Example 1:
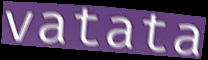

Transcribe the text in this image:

vatata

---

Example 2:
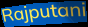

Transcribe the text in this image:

Rajputani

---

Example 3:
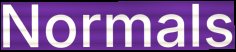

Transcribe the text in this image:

Normals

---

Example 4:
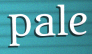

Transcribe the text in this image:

pale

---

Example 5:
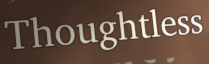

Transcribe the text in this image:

Thoughtless